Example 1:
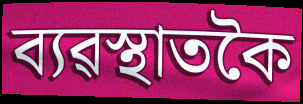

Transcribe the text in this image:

ব্যৱস্থাতকৈ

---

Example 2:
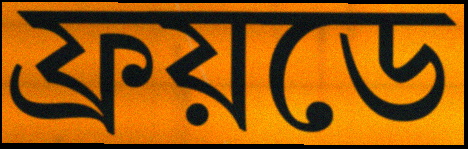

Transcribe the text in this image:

ফ্ৰয়ডে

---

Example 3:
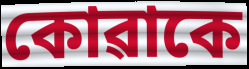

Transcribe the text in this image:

কোৱাকে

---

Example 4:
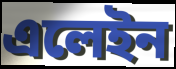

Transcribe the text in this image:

এলেইন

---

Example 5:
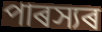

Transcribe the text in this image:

পাৰস্যৰ